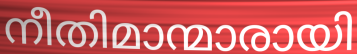
നീതിമാന്മാരായി